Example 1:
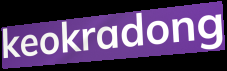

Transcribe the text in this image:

keokradong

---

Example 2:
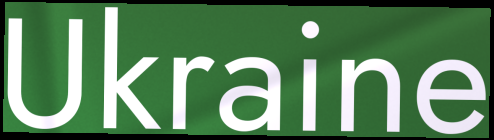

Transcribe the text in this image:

Ukraine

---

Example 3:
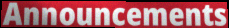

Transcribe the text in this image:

Announcements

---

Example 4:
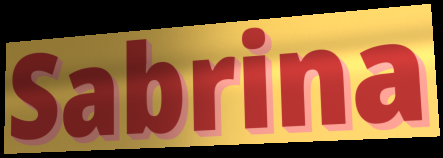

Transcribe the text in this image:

Sabrina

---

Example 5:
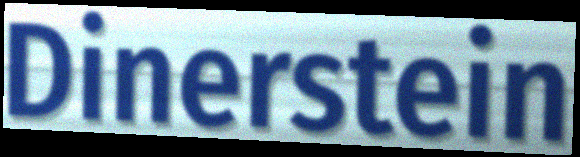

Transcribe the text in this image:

Dinerstein